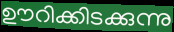
ഊറിക്കിടക്കുന്നു